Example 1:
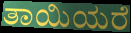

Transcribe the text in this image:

ತಾಯಿಯರೆ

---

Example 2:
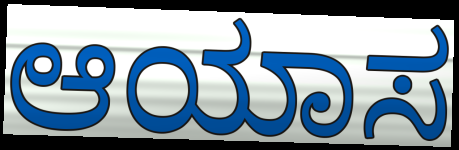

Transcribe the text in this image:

ಆಯಾಸ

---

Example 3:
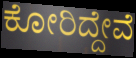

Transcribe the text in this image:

ಕೋರಿದ್ದೇವೆ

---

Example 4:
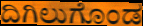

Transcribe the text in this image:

ದಿಗಿಲುಗೊಂಡ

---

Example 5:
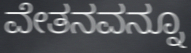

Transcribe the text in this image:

ವೇತನವನ್ನೂ